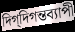
দিগ্‌দিগন্তব্যাপী